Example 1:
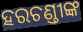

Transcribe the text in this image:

ହରଚଣ୍ଡୀଙ୍କ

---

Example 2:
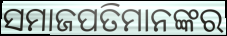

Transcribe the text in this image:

ସମାଜପତିମାନଙ୍କର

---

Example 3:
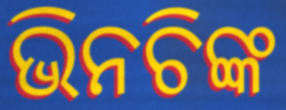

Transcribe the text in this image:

ଭିନଚିଙ୍କ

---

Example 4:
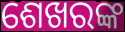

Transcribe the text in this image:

ଶେଖରଙ୍କ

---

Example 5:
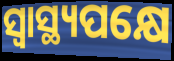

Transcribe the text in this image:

ସ୍ଵାସ୍ଥ୍ୟପକ୍ଷେ